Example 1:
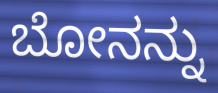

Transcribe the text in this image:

ಬೋನನ್ನು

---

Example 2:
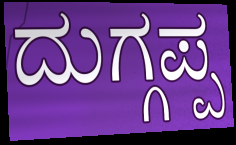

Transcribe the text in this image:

ದುಗ್ಗಪ್ಪ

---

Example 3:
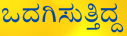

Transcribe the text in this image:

ಒದಗಿಸುತ್ತಿದ್ದ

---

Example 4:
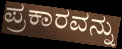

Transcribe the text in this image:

ಪ್ರಕಾರವನ್ನು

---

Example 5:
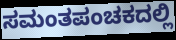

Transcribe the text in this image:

ಸಮಂತಪಂಚಕದಲ್ಲಿ